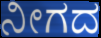
ನೀಗದ